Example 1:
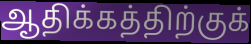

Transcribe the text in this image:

ஆதிக்கத்திற்குக்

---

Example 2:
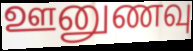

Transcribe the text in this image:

ஊனுணவு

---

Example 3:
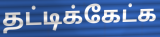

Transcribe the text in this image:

தட்டிக்கேட்க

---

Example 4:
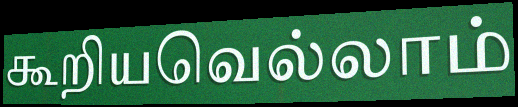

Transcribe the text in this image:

கூறியவெல்லாம்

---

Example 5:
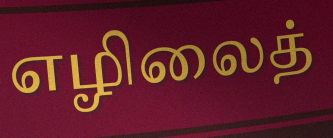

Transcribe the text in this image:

எழிலைத்